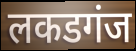
लकडगंज